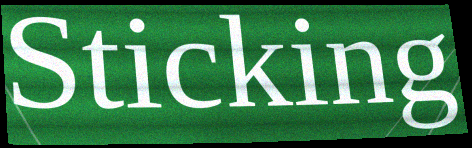
Sticking